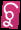
ଚୁ